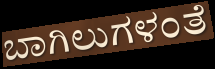
ಬಾಗಿಲುಗಳಂತೆ